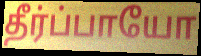
தீர்ப்பாயோ